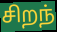
சிறந்